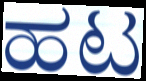
ಹಟ